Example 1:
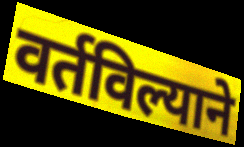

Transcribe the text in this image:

वर्तविल्याने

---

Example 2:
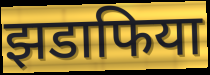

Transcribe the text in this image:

झडाफिया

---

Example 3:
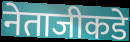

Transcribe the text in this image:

नेताजीकडे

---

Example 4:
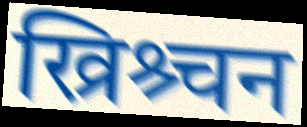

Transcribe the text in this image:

ख्रिश्र्चन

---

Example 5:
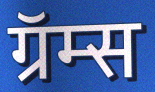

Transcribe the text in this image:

ग्रॅम्स